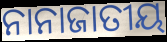
ନାନାଜାତୀୟ